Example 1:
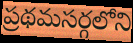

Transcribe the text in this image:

ప్రథమసర్గలోని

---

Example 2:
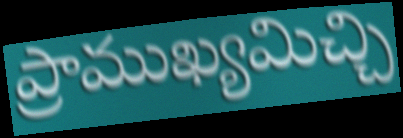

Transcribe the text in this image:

ప్రాముఖ్యమిచ్చి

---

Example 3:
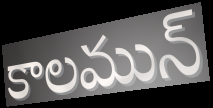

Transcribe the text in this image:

కాలమున్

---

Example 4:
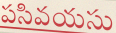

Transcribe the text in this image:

పసివయసు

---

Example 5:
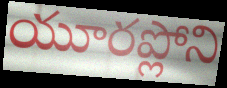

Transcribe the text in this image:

యూరప్లోని